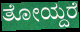
ತೋಯ್ದರೆ